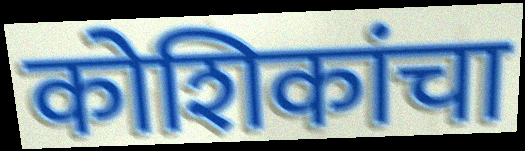
कोशिकांचा